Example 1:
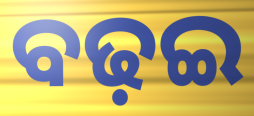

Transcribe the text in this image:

ବଢ଼ଇ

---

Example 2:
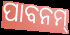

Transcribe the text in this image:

ପାବନମ୍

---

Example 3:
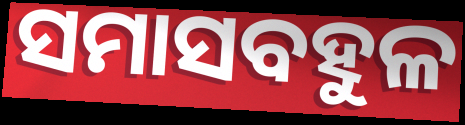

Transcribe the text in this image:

ସମାସବହୁଳ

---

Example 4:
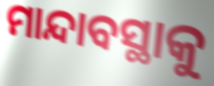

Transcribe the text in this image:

ମାନ୍ଦାବସ୍ଥାକୁ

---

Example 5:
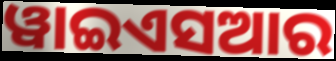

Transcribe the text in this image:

ୱାଇଏସଆର